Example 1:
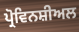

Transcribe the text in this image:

ਪ੍ਰੋਵਿਨਸ਼ੀਅਲ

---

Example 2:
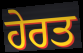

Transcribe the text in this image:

ਹੇਰਤ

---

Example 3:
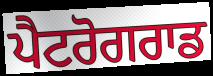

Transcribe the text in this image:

ਪੈਟਰੋਗਰਾਡ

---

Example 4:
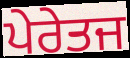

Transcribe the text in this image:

ਪੇਰੇਤਜ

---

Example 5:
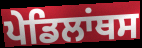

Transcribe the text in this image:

ਪੇਡਿਲਾਂਥਸ